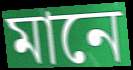
মানে